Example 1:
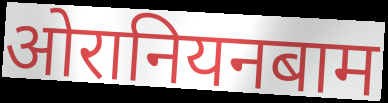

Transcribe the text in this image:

ओरानियनबाम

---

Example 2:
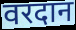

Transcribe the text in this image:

वरदान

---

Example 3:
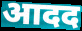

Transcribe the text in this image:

आदद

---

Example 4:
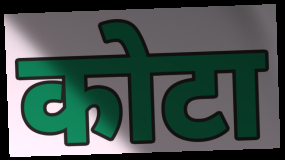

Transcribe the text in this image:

कोटा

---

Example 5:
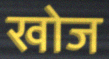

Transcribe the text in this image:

खोज